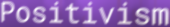
Positivism